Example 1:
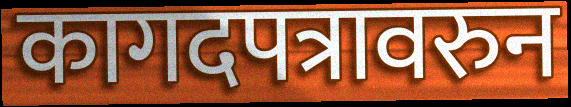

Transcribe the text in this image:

कागदपत्रावरुन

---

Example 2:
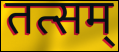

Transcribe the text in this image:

तत्सम्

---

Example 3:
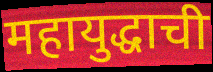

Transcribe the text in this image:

महायुद्धाची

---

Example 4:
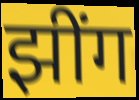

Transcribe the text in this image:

झींग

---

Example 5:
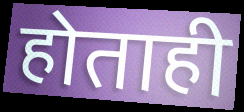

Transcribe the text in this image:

होताही